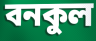
বনকুল